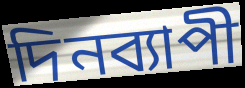
দিনব্যাপী